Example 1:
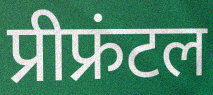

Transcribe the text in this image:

प्रीफ्रंटल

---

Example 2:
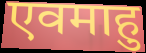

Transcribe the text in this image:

एवमाहु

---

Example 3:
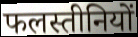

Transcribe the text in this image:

फलस्तीनियों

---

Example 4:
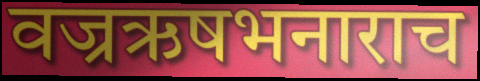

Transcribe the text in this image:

वज्रऋषभनाराच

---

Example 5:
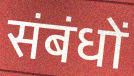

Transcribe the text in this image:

संबंधों